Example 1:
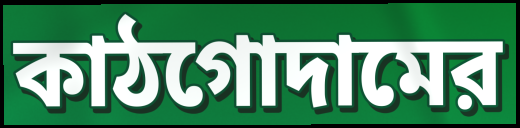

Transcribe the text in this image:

কাঠগোদামের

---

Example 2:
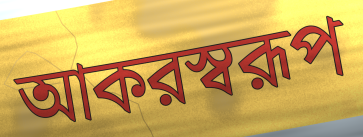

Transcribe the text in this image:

আকরস্বরূপ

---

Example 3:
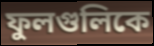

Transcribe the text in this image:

ফুলগুলিকে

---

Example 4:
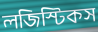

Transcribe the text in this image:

লজিস্টিকস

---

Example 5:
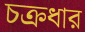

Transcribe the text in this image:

চক্রধার